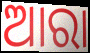
ଆରା